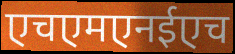
एचएमएनईएच